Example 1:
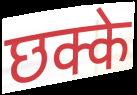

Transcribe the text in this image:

छक्के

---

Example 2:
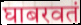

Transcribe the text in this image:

घाबरवतं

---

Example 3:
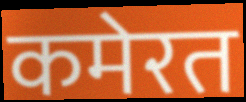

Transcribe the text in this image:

कमेरत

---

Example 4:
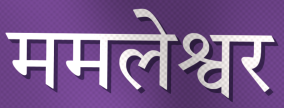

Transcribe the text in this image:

ममलेश्वर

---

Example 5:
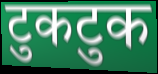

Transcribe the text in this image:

टुकटुक